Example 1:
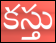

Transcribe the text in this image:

కస్తు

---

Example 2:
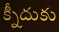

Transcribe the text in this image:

క్నీదుకు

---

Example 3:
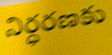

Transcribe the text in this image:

నిర్ధరణకు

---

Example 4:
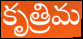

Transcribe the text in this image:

కృత్రిమ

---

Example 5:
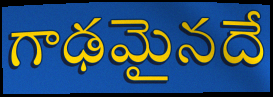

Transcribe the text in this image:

గాఢమైనదే